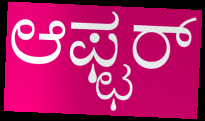
ಆಫ್ಟರ್